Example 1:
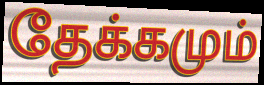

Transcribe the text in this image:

தேக்கமும்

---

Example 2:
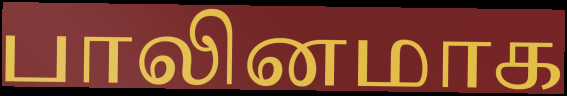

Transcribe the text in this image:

பாலினமாக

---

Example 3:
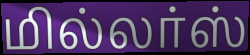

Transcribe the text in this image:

மில்லர்ஸ்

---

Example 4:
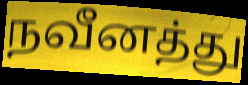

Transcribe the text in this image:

நவீனத்து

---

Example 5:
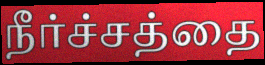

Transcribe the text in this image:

நீர்ச்சத்தை